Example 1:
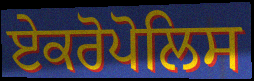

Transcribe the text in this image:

ਏਕਰੋਪੋਲਿਸ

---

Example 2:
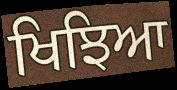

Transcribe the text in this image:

ਖਿਝਿਆ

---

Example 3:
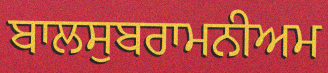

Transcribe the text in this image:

ਬਾਲਸੁਬਰਾਮਨੀਅਮ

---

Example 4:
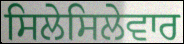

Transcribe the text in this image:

ਸਿਲੇਸਿਲੇਵਾਰ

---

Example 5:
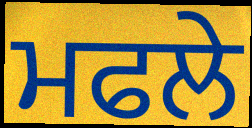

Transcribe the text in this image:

ਮਫਲੇ